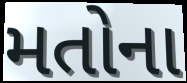
મતોના